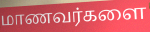
மாணவர்களை